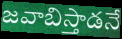
జవాబిస్తాడనే